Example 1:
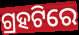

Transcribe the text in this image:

ଗ୍ରହଟିରେ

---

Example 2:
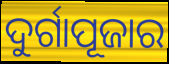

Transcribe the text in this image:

ଦୁର୍ଗାପୂଜାର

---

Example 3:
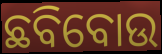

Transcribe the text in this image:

ଛବିବୋଉ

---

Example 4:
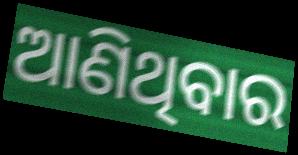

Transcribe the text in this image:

ଆଣିଥିବାର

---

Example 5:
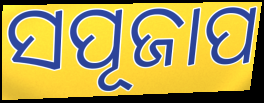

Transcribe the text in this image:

ସପୂଜାପ